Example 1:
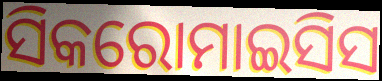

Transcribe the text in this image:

ସିକରୋମାଇସିସ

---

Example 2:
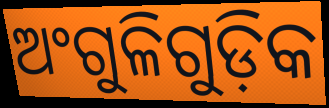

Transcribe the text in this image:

ଅଂଗୁଳିଗୁଡ଼ିକ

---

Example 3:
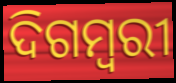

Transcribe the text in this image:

ଦିଗମ୍ୱରୀ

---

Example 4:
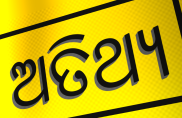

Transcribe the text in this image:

ଅତିଥ୍ୟ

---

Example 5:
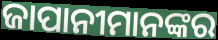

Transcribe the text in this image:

ଜାପାନୀମାନଙ୍କର